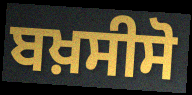
ਬਖ਼ਸੀਸੋ